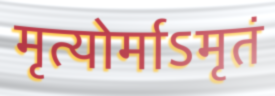
मृत्योर्माऽमृतं